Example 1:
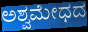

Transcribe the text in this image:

ಅಶ್ವಮೇಧದ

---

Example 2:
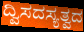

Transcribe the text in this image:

ದ್ವಿಸದಸ್ಯತ್ವದ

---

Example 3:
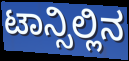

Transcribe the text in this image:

ಟಾನ್ಸಿಲ್ಲಿನ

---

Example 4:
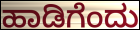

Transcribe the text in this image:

ಹಾಡಿಗೆಂದು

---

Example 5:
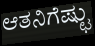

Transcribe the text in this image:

ಆತನಿಗೆಷ್ಟು